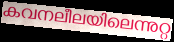
കവനലീലയിലെന്നുറ്റ